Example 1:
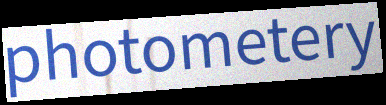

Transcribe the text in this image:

photometery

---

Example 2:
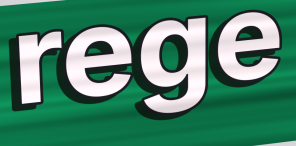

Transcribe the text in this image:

rege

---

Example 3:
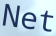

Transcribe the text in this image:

Net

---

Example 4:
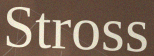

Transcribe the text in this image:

Stross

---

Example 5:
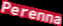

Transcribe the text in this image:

Perenna